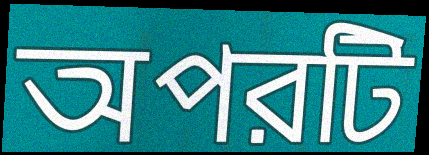
অপরটি